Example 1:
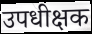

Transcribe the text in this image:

उपधीक्षक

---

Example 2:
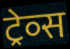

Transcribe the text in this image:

ट्रेव्स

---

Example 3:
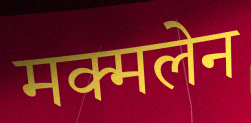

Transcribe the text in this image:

मक्मलेन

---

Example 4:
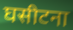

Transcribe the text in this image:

घसीटना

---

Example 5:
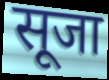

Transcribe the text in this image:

सूजा